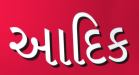
આદિક